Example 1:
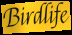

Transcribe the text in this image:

Birdlife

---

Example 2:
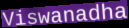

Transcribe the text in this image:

Viswanadha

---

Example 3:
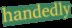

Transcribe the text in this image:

handedly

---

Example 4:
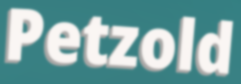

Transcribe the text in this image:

Petzold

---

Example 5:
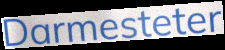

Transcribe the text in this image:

Darmesteter